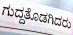
ಗುದ್ದತೊಡಗಿದರು